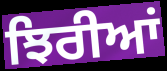
ਝਿਰੀਆਂ